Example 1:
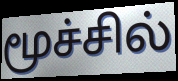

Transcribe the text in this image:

மூச்சில்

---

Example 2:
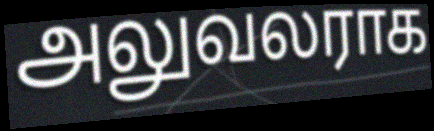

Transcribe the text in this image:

அலுவலராக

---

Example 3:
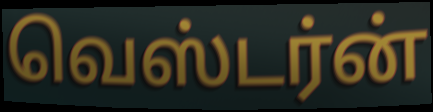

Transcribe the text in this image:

வெஸ்டர்ன்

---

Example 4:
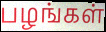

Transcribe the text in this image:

பழங்கள்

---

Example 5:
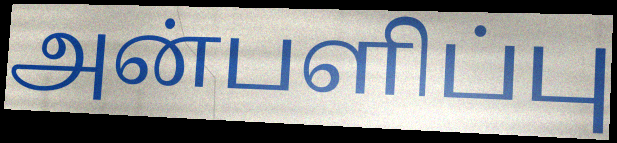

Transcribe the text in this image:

அன்பளிப்பு